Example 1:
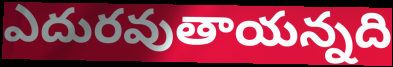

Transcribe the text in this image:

ఎదురవుతాయన్నది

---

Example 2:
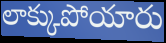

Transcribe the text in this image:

లాక్కుపోయారు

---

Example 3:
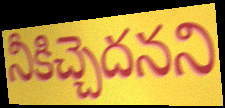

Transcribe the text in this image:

నీకిచ్చెదనని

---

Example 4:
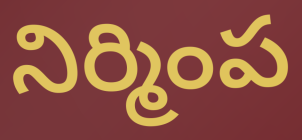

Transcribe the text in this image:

నిర్మింప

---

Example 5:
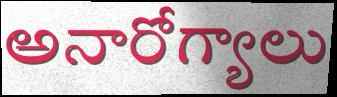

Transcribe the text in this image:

అనారోగ్యాలు